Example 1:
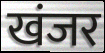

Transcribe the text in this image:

खंजर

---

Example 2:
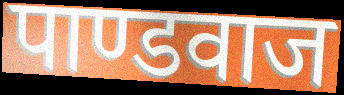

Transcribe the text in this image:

पाण्डवाज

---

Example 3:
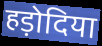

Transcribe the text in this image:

हड़ोदिया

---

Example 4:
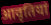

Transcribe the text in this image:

आवृतियां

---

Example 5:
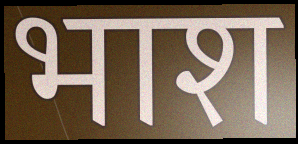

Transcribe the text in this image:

भाश